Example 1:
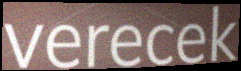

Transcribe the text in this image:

verecek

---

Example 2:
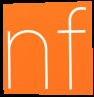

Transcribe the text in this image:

nf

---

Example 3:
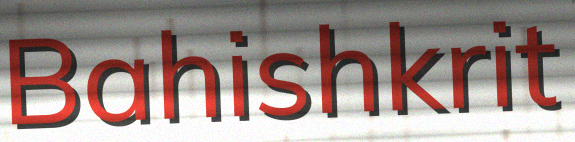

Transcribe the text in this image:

Bahishkrit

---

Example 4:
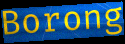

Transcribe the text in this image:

Borong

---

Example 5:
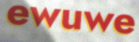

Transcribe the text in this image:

ewuwe